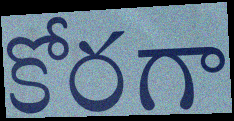
కోరగా